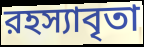
রহস্যাবৃতা